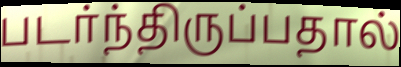
படர்ந்திருப்பதால்